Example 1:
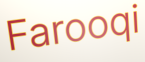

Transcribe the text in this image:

Farooqi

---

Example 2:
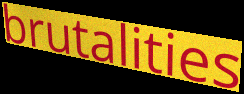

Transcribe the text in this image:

brutalities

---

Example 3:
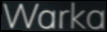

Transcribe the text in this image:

Warka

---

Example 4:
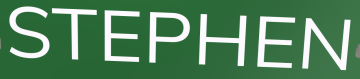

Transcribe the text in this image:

STEPHEN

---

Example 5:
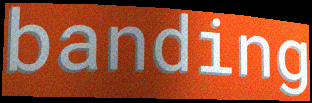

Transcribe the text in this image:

banding